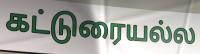
கட்டுரையல்ல